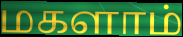
மகளாம்